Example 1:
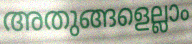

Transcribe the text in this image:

അതുങ്ങളെല്ലാം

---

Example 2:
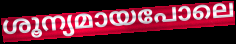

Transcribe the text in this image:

ശൂന്യമായപോലെ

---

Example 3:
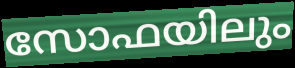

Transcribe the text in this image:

സോഫയിലും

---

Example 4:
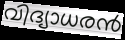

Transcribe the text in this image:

വിദ്യാധരൻ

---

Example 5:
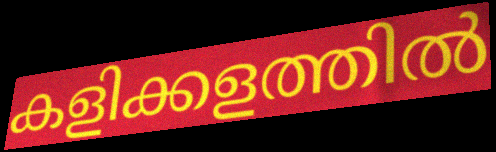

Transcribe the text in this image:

കളിക്കളത്തിൽ